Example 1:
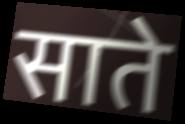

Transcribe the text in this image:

साते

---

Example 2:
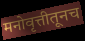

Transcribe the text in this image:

मनोवृत्तीतूनच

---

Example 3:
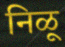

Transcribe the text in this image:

निळू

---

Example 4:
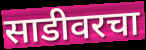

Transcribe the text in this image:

साडीवरचा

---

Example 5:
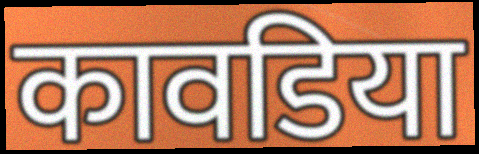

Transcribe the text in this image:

कावडिया